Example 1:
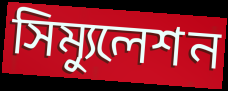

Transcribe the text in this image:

সিম্যুলেশন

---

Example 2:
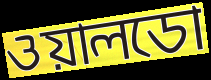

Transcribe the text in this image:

ওয়ালডো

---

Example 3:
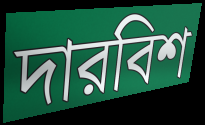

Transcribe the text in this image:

দারবিশ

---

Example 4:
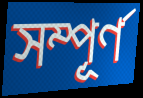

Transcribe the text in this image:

সম্পূর্ণ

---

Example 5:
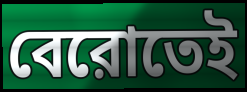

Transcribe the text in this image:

বেরোতেই